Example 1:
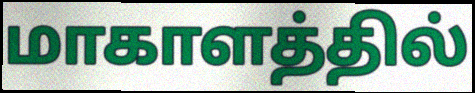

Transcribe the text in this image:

மாகாளத்தில்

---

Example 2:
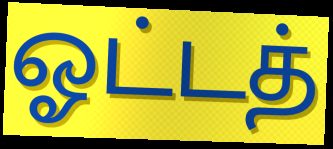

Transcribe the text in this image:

ஓட்டத்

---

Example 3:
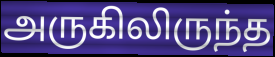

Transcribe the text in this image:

அருகிலிருந்த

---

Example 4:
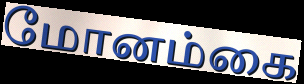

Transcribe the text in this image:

மோனம்கை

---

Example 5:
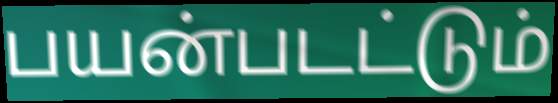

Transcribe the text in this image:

பயன்படட்டும்